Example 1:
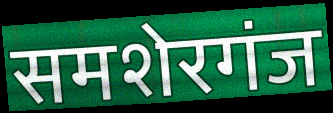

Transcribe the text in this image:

समशेरगंज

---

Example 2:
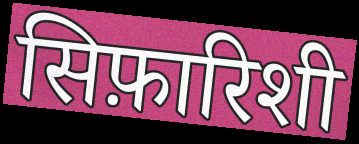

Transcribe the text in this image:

सिफ़ारिशी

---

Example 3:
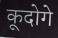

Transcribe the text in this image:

कूदोगे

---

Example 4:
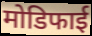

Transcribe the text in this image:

मोडिफाई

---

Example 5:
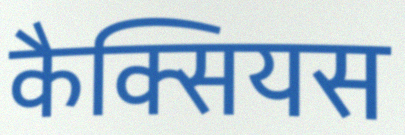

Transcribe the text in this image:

कैक्सियस